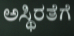
ಅಸ್ಥಿರತೆಗೆ